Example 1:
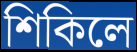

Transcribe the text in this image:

শিকিলে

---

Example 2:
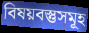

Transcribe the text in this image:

বিষয়বস্তুসমূহ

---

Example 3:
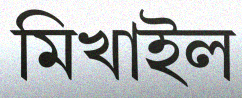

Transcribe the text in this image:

মিখাইল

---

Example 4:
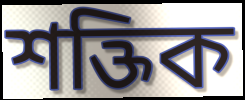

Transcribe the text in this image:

শক্তিক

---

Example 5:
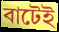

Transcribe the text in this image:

বাটেই